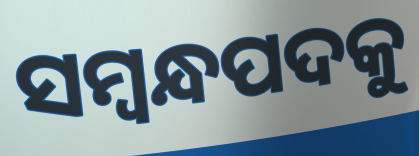
ସମ୍ବନ୍ଧପଦକୁ